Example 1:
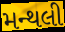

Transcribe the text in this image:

મન્થલી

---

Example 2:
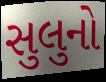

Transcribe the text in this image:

સુલુનો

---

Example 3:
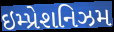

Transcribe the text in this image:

ઇમ્પ્રેશનિઝમ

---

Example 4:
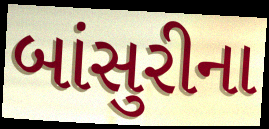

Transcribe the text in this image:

બાંસુરીના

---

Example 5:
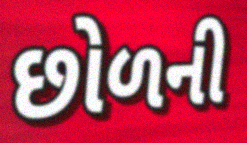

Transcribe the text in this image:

છોળની